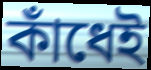
কাঁধেই